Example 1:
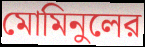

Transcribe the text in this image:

মোমিনুলের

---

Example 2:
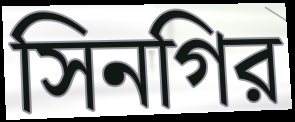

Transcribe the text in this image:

সিনগির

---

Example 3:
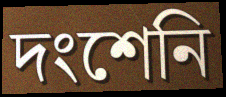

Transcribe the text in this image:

দংশেনি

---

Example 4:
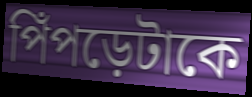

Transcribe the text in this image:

পিঁপড়েটাকে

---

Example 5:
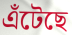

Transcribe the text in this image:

এঁটেছে